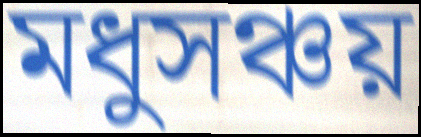
মধুসঞ্চয়